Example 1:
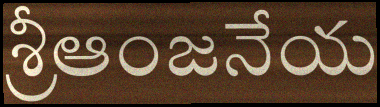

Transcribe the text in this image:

శ్రీఆంజనేయ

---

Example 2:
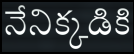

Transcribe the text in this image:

నేనిక్కడికి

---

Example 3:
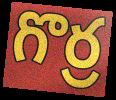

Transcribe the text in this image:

గొర్ర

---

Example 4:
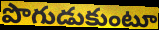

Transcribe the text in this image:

పొగుడుకుంటూ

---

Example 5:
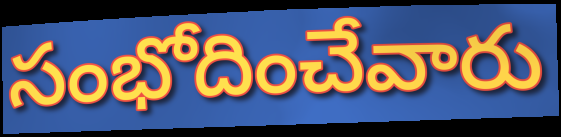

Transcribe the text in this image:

సంభోదించేవారు